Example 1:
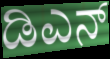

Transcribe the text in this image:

ಡಿಎನ್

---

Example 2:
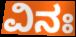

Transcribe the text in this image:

ವಿನಃ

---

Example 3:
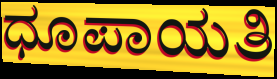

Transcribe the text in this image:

ಧೂಪಾಯತಿ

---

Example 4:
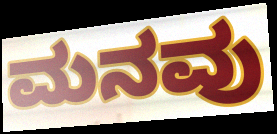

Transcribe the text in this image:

ಮನವು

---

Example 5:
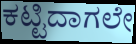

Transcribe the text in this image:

ಕಟ್ಟಿದಾಗಲೇ